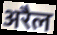
अरैल